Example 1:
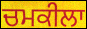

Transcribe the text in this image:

ਚਮਕੀਲਾ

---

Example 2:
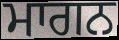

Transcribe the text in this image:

ਮਾਗਨ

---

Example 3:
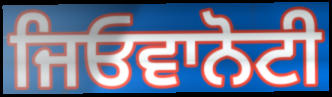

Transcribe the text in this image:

ਜਿਓਵਾਨੋਟੀ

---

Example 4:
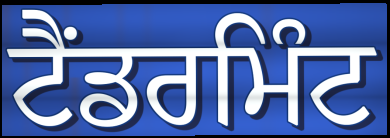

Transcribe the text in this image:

ਟੈਂਡਰਮਿੰਟ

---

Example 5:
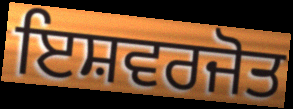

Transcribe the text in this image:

ਇਸ਼ਵਰਜੋਤ